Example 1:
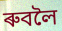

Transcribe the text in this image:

ৰুবলৈ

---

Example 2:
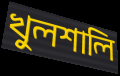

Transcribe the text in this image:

খুলশালি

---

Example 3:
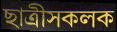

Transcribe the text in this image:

ছাত্ৰীসকলক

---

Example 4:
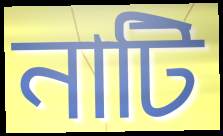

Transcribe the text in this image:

নাটি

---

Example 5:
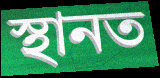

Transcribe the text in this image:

স্থানত